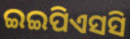
ଇଇପିଏସସି